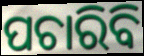
ପଚାରିବି